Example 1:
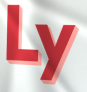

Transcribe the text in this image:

Ly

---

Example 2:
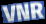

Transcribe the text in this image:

VNR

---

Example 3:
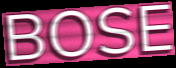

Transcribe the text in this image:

BOSE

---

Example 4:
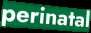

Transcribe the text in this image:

perinatal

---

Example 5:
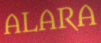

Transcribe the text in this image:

ALARA